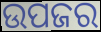
ଉପଜର